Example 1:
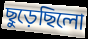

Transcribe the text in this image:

ছুড়েছিলো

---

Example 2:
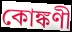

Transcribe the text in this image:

কোঙ্কণী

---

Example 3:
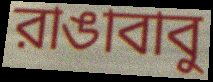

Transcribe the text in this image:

রাঙাবাবু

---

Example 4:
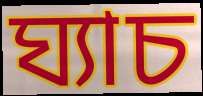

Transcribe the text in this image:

ঘ্যাচ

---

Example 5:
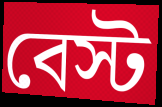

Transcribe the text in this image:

বেস্ট